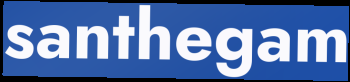
santhegam